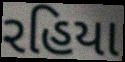
રહિયા